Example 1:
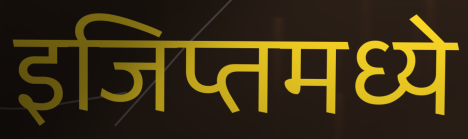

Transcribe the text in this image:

इजिप्तमध्ये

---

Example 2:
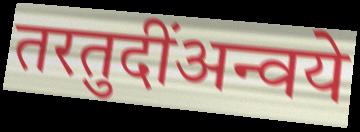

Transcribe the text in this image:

तरतुदींअन्वये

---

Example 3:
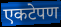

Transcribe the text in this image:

एकटेपण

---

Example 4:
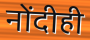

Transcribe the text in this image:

नोंदीही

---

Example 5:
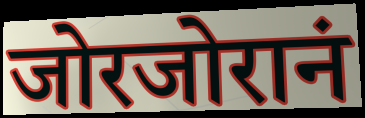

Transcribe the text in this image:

जोरजोरानं